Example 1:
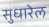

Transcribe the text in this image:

सुधारेल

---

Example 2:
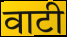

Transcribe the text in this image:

वाटी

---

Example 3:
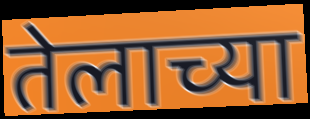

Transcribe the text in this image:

तेलाच्या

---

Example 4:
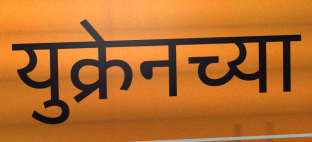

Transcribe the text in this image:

युक्रेनच्या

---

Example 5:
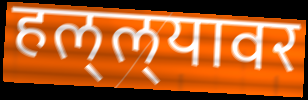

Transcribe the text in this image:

हल्ल्यावर